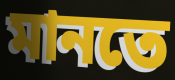
মানতে